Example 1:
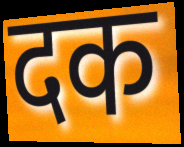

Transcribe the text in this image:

दक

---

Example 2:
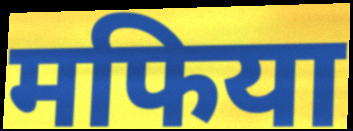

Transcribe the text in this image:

मफिया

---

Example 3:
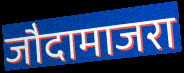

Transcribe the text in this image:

जौदामाजरा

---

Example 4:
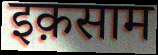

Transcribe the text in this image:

इक़साम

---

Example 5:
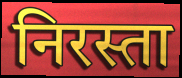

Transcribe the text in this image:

निरस्ता